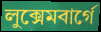
লুক্সেমবার্গে